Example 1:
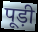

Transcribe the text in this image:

पूड़ी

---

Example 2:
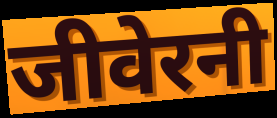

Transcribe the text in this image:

जीवेरनी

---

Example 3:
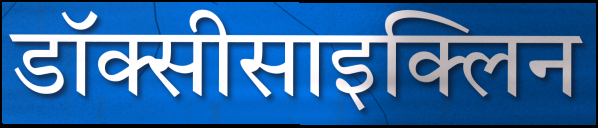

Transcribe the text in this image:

डॉक्सीसाइक्लिन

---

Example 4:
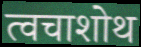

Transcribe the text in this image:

त्वचाशोथ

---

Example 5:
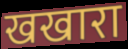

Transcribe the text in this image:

खखारा